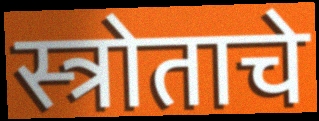
स्त्रोताचे